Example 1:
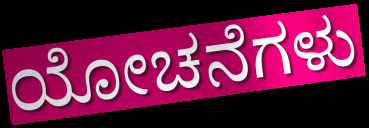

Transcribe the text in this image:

ಯೋಚನೆಗಳು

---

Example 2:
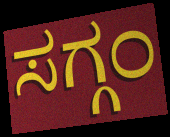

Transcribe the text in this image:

ಸಗ್ಗಂ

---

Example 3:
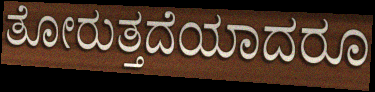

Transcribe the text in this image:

ತೋರುತ್ತದೆಯಾದರೂ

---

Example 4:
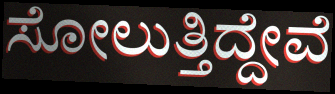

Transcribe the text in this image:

ಸೋಲುತ್ತಿದ್ದೇವೆ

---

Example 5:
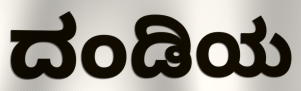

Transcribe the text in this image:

ದಂಡಿಯ